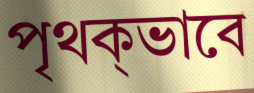
পৃথক্ভাবে